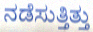
ನಡೆಸುತ್ತಿತ್ತು